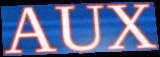
AUX